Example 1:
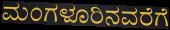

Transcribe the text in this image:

ಮಂಗಳೂರಿನವರೆಗೆ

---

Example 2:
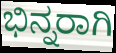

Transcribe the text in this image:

ಭಿನ್ನರಾಗಿ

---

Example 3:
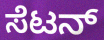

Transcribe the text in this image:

ಸೆಟನ್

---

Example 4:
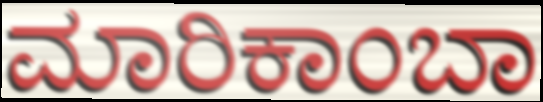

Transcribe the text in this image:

ಮಾರಿಕಾಂಬಾ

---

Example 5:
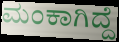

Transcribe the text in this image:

ಮಂಕಾಗಿದ್ದೆ